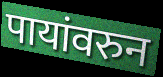
पायांवरुन